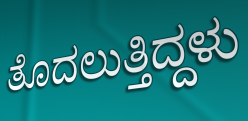
ತೊದಲುತ್ತಿದ್ದಳು